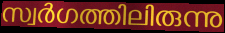
സ്വർഗത്തിലിരുന്നു